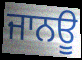
ਜਾਨਊ